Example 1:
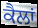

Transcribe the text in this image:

ਕੈਲਾਂ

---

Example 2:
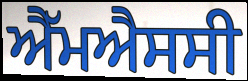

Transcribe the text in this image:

ਐੱਮਐਸਸੀ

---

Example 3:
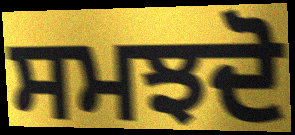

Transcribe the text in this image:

ਸਮਝਦੋ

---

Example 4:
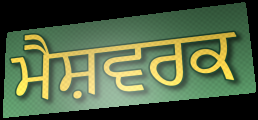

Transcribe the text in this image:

ਮੈਸ਼ਵਰਕ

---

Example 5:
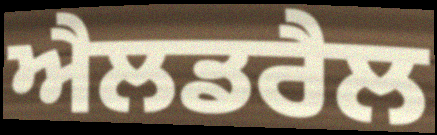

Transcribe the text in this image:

ਐਲਡਰੈਲ